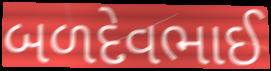
બળદેવભાઈ